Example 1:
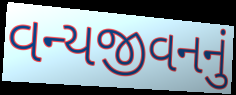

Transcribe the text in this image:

વન્યજીવનનું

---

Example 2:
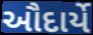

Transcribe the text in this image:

ઔદાર્યે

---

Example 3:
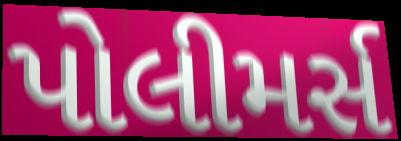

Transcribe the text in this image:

પોલીમર્સ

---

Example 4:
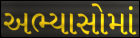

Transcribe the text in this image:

અભ્યાસોમાં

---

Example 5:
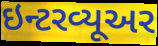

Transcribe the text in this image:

ઇન્ટરવ્યૂઅર